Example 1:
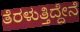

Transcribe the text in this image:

ತೆರಳುತ್ತಿದ್ದೇನೆ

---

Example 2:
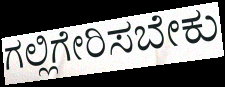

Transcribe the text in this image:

ಗಲ್ಲಿಗೇರಿಸಬೇಕು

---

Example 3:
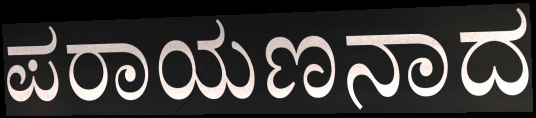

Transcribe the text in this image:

ಪರಾಯಣನಾದ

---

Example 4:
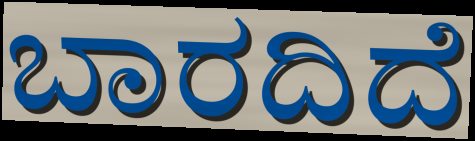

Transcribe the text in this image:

ಬಾರದಿದೆ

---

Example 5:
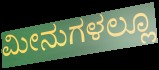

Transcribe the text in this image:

ಮೀನುಗಳಲ್ಲೂ